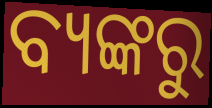
ବ୍ୟଙ୍କରୁ